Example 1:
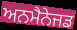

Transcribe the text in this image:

ਅਨਮੈਨੇਜਡ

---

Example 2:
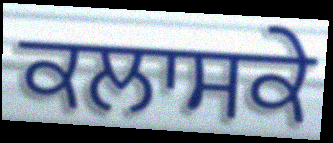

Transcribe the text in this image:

ਕਲਾਸਕੇ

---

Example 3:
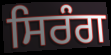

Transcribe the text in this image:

ਸਿਰੰਗ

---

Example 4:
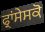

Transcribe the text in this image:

ਫ੍ਰਾਂਸੇਸਕੋ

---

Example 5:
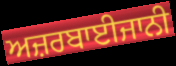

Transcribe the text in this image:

ਅਜ਼ਰਬਾਈਜਾਨੀ